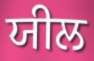
ਯੀਲ